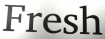
Fresh